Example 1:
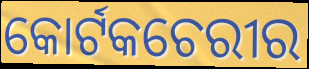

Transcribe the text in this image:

କୋର୍ଟକଚେରୀର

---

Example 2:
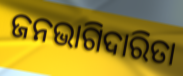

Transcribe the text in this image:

ଜନଭାଗିଦାରିତା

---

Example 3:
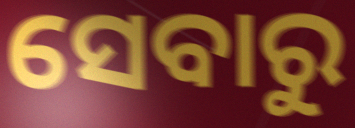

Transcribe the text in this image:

ସେବାରୁ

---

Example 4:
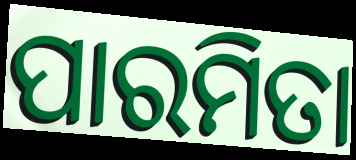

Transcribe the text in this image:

ପାରମିତା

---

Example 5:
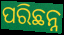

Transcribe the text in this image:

ପରିଛନ୍ନ